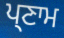
ਪ੍ਣਾਮ